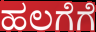
ಹಲಗೆಗೆ